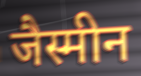
जैस्मीन